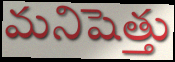
మనిషెత్తు